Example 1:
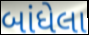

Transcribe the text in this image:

બાંધેલા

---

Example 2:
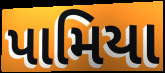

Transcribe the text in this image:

પામિયા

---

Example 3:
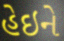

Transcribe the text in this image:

હેઇને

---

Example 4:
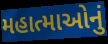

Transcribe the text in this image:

મહાત્માઓનું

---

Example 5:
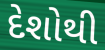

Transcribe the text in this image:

દેશોથી